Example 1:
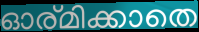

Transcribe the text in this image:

ഓര്മിക്കാതെ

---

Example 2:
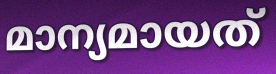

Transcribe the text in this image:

മാന്യമായത്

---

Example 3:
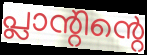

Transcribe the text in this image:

പ്ലാന്റിന്റെ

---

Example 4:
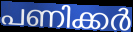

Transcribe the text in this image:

പണിക്കർ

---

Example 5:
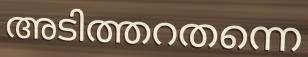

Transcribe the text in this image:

അടിത്തറതന്നെ